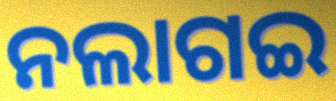
ନଲାଗଇ